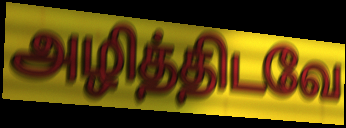
அழித்திடவே